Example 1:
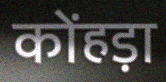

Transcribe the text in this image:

कोंहड़ा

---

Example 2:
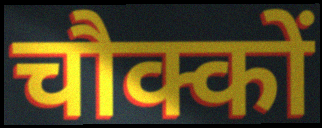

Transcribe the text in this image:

चौक्कों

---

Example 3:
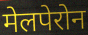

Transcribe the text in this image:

मेलपेरोन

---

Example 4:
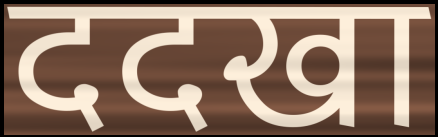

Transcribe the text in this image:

ददखा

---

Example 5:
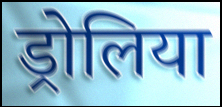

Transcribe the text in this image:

ड्रोलिया